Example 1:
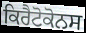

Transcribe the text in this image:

ਕਿਰੈਟੋਕੋਨਸ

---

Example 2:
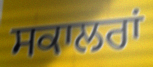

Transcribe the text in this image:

ਸਕਾਲਰਾਂ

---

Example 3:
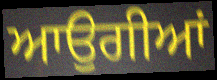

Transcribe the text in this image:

ਆਉਗੀਆਂ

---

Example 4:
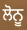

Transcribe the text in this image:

ਲੋਨੂ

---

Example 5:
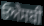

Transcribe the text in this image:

ਓਐਸਬੀ